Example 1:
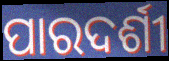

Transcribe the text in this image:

ପାରଦର୍ଶୀ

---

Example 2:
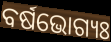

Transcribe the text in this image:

ବର୍ଷଭୋଗ୍ୟଃ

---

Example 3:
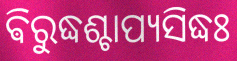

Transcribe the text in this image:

ଵିରୁଦ୍ଧଶ୍ଚାପ୍ଯସିଦ୍ଧଃ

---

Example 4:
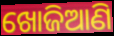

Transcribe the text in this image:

ଖୋଜିଆଣି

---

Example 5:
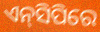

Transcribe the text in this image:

ଏନ୍‌ସିପିରେ